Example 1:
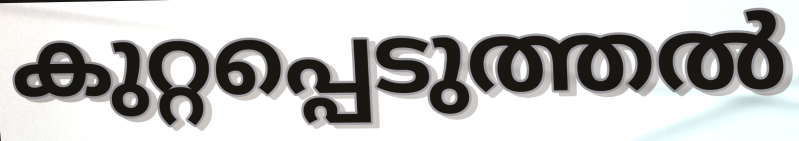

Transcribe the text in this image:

കുറ്റപ്പെടുത്തൽ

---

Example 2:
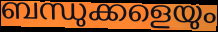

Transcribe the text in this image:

ബന്ധുക്കളെയും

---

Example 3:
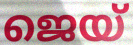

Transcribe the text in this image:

ജെയ്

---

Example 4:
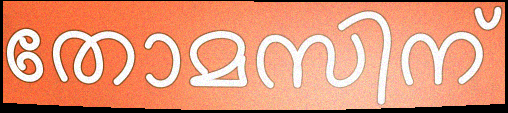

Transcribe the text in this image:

തോമസിന്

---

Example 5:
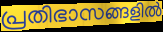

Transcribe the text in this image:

പ്രതിഭാസങ്ങളിൽ